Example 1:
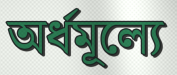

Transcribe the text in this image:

অর্ধমূল্যে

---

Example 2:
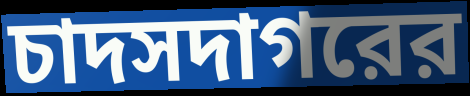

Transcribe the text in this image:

চাদসদাগরের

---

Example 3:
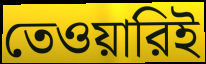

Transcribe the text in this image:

তেওয়ারিই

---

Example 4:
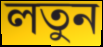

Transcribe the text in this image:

লতুন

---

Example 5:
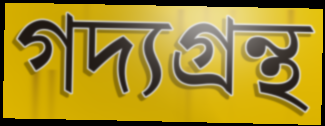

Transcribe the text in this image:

গদ্যগ্রন্থ